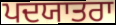
ਪਦਯਾਤਰਾ